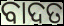
ବାଦତ